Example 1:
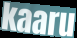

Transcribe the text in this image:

kaaru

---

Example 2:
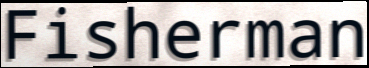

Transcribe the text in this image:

Fisherman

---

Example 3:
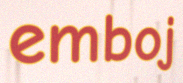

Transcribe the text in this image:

emboj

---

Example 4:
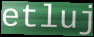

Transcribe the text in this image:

etluj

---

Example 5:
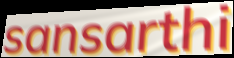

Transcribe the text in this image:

sansarthi